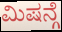
ಮಿಷನ್ಗೆ